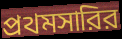
প্রথমসারির